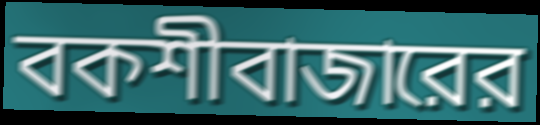
বকশীবাজারের